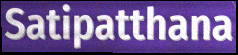
Satipatthana